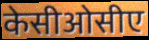
केसीओसीए